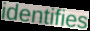
identifies